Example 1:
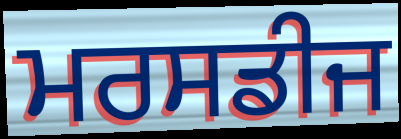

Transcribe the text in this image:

ਮਰਸਡੀਜ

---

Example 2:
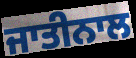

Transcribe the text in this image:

ਜਾਤੀਨਾਲ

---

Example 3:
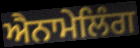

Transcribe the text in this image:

ਐਨਾਮੇਲਿੰਗ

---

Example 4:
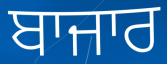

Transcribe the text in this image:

ਬਾਜਾਰ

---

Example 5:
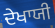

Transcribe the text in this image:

ਦੇਖਾਯੀ